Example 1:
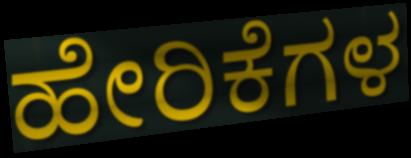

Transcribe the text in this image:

ಹೇರಿಕೆಗಳ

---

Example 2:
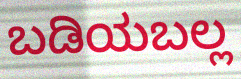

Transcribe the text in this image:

ಬಡಿಯಬಲ್ಲ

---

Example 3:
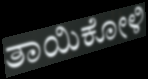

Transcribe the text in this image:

ತಾಯಿಕೋಳಿ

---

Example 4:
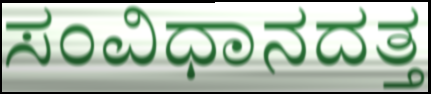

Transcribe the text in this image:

ಸಂವಿಧಾನದತ್ತ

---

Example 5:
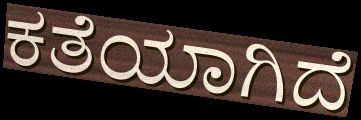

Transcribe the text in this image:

ಕತೆಯಾಗಿದೆ